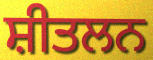
ਸ਼ੀਤਲਨ